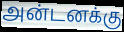
அன்டனக்கு